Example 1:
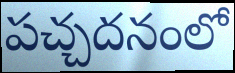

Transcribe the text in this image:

పచ్చదనంలో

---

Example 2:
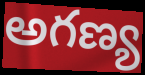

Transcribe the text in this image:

అగణ్య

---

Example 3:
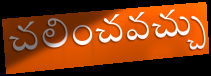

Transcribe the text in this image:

చలించవచ్చు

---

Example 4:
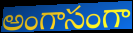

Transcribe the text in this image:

అంగాసంగా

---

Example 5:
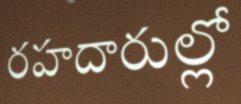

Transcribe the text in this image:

రహదారుల్లో